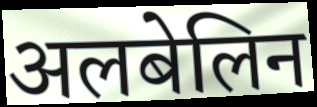
अलबेलिन